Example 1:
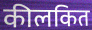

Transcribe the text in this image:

कीलकित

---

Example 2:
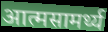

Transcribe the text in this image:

आत्मसामर्थ्य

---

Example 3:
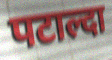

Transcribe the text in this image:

पटाल्दा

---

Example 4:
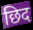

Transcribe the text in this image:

छिद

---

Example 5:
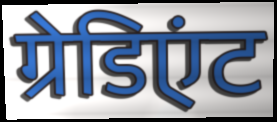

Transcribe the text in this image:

ग्रेडिएंट